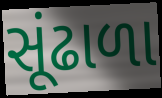
સૂંઢાળા